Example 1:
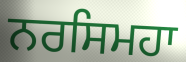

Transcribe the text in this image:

ਨਰਸਿਮਹਾ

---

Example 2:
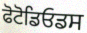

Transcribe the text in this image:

ਫੋਟੋਡਿਓਡਸ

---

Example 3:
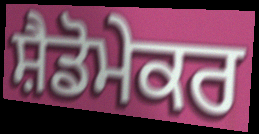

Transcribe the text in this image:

ਸ਼ੈਡੋਮੇਕਰ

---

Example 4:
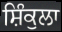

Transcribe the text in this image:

ਸ਼ਿੰਕੁਲਾ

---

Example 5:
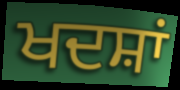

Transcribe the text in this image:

ਖਦਸ਼ਾਂ